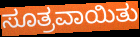
ಸೂತ್ರವಾಯಿತು